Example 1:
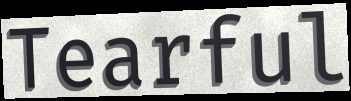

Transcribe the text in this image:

Tearful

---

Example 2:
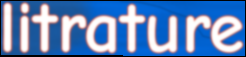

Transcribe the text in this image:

litrature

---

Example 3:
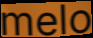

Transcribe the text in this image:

melo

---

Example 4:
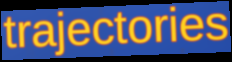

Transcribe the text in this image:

trajectories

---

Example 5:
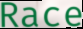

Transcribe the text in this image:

Race